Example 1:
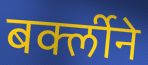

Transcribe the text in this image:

बर्क्लीने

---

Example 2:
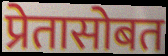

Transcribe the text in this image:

प्रेतासोबत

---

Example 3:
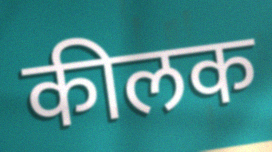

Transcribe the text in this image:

कीलक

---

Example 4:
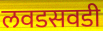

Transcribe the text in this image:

लवडसवडी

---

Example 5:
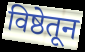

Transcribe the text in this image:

विष्ठेतून